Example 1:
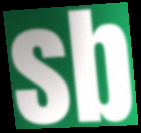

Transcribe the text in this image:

sb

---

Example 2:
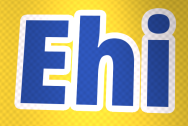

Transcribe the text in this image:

Ehi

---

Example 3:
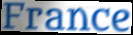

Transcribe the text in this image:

France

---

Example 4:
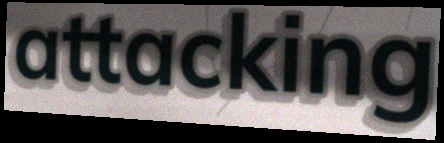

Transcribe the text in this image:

attacking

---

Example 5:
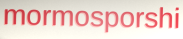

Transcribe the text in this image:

mormosporshi